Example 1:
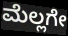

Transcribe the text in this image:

ಮೆಲ್ಲಗೇ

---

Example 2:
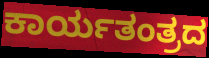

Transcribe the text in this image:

ಕಾರ್ಯತಂತ್ರದ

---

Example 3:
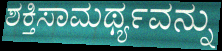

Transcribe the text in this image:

ಶಕ್ತಿಸಾಮರ್ಥ್ಯವನ್ನು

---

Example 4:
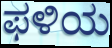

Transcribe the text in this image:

ಫಳಿಯ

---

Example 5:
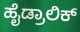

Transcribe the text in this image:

ಹೈಡ್ರಾಲಿಕ್